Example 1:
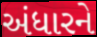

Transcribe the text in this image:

અંધારને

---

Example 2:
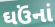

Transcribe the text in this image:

ઘઉંનાં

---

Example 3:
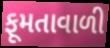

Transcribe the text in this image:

ફૂમતાવાળી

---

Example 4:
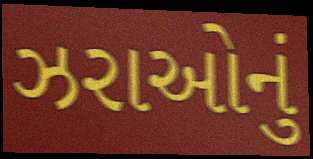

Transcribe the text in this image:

ઝરાઓનું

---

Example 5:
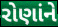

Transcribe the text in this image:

રોણાંને